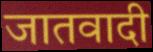
जातवादी